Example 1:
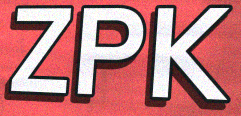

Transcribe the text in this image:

ZPK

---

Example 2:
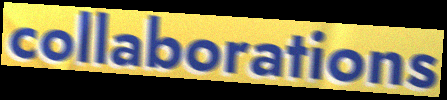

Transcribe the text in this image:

collaborations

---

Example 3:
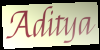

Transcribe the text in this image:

Aditya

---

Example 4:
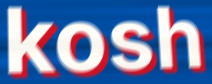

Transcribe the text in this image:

kosh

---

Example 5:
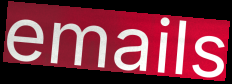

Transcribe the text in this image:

emails